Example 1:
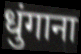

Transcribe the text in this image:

धुंगाना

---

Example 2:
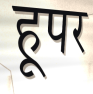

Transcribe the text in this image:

हूपर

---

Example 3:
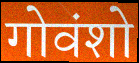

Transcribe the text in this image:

गोवंशो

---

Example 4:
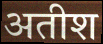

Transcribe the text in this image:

अतीश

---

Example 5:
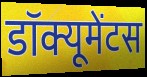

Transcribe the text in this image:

डॉक्यूमेंटस